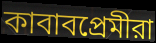
কাবাবপ্রেমীরা